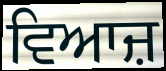
ਵਿਆਜ਼